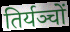
तिर्यञ्चों